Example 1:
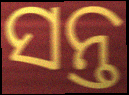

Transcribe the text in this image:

ସନ୍ତ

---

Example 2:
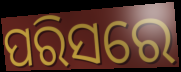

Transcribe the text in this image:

ପରିସରେ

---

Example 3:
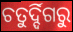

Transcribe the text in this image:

ଚତୁର୍ଦ୍ଦିଗରୁ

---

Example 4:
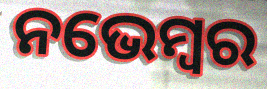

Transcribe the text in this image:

ନଭେମ୍ବର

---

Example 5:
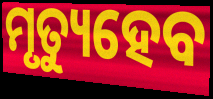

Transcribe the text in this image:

ମୃତ୍ୟୁହେବ